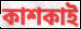
কাশকাই